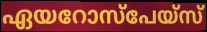
ഏയറോസ്പേയ്സ്